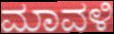
ಮಾವಳಿ